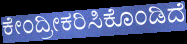
ಕೇಂದ್ರೀಕರಿಸಿಕೊಂಡಿದೆ